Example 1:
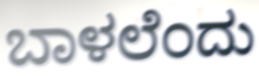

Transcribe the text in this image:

ಬಾಳಲೆಂದು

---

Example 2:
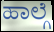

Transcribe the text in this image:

ಹಾಲ್ಗೆ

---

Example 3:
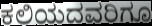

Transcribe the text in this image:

ಕಲಿಯದವರಿಗೂ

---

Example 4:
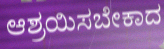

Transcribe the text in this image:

ಆಶ್ರಯಿಸಬೇಕಾದ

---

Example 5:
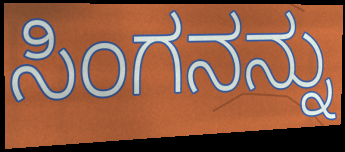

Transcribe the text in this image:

ಸಿಂಗನನ್ನು